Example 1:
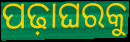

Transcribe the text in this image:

ପଢ଼ାଘରକୁ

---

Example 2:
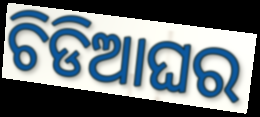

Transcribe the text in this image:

ଚିଡିଆଘର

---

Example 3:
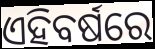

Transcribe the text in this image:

ଏହିବର୍ଷରେ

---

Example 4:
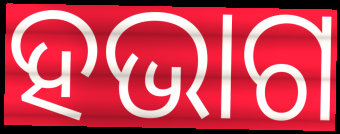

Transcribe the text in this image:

ହଭାଗ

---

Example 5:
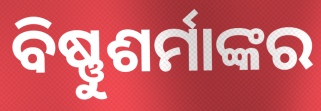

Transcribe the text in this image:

ବିଷ୍ଣୁଶର୍ମାଙ୍କର